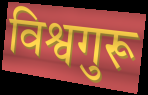
विश्वगुरू